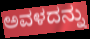
ಅವಳದನ್ನು